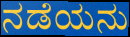
ನಡೆಯನು